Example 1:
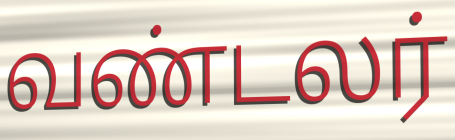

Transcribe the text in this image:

வண்டலர்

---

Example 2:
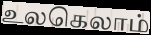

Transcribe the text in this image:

உலகெலாம்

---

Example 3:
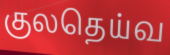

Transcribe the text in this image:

குலதெய்வ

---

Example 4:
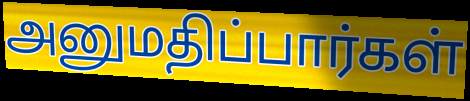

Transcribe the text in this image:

அனுமதிப்பார்கள்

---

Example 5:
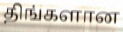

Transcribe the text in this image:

திங்களான